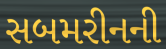
સબમરીનની